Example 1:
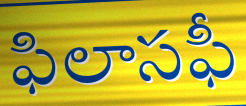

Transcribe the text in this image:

ఫిలాసఫీ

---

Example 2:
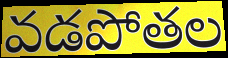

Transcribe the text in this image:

వడపోతల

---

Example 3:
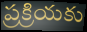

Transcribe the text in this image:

ప్రక్రియకు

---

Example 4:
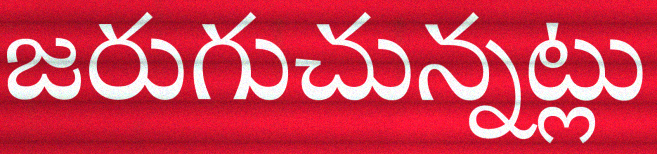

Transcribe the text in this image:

జరుగుచున్నట్లు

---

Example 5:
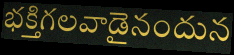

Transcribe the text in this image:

భక్తిగలవాడైనందున